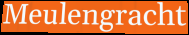
Meulengracht